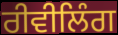
ਰੀਵੀਲਿੰਗ